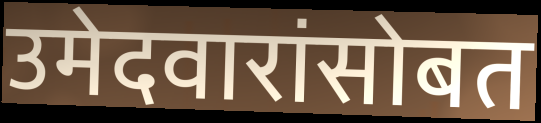
उमेदवारांसोबत